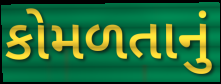
કોમળતાનું